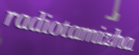
radiotamizha